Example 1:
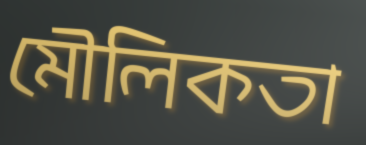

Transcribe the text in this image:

মৌলিকতা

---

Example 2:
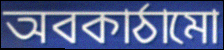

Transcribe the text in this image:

অবকাঠামো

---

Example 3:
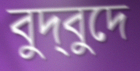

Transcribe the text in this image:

বুদ্‌বুদে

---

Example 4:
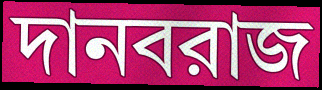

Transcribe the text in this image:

দানবরাজ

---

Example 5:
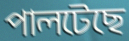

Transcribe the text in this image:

পালটেছে